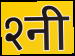
श्नी